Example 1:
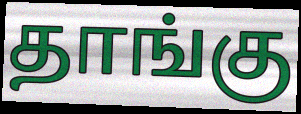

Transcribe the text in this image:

தாங்கு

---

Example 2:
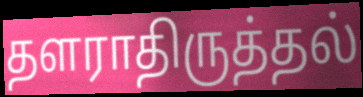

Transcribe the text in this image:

தளராதிருத்தல்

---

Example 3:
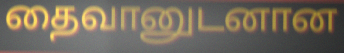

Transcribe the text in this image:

தைவானுடனான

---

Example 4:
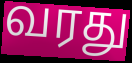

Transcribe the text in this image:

வரது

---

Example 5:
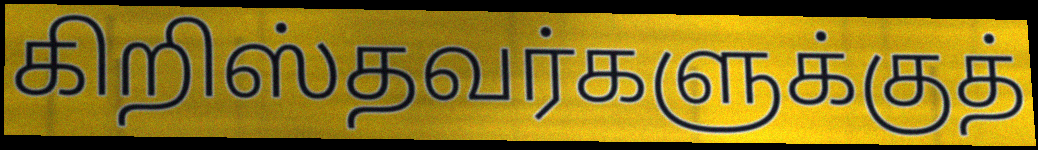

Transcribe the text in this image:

கிறிஸ்தவர்களுக்குத்